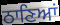
ਠਾਣਿਆਂ